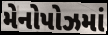
મેનોપોઝમાં